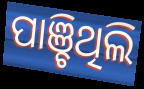
ପାଞ୍ଚିଥିଲି